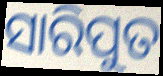
ସାରିପୁତ